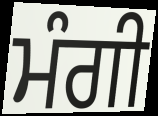
ਮੰਗੀ